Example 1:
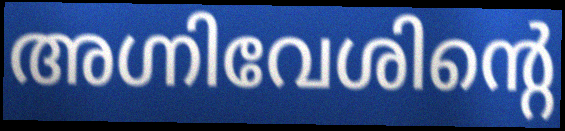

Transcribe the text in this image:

അഗ്നിവേശിന്റെ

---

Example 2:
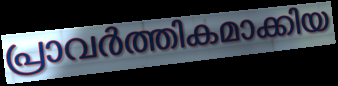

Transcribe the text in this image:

പ്രാവർത്തികമാക്കിയ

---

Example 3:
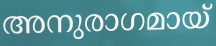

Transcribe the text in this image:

അനുരാഗമായ്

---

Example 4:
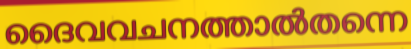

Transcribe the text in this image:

ദൈവവചനത്താൽതന്നെ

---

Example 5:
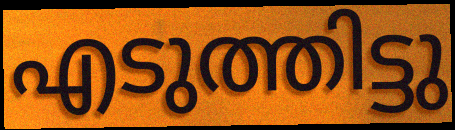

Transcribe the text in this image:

എടുത്തിട്ടു